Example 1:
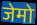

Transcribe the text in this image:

जेमो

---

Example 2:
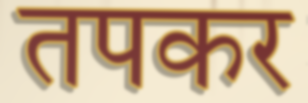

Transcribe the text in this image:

तपकर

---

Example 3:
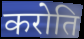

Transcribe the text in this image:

करोति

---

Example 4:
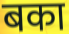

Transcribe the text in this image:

बका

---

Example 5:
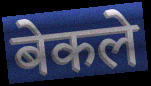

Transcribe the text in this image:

बेकले